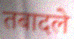
तबादले